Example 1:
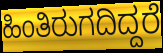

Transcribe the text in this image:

ಹಿಂತಿರುಗದಿದ್ದರೆ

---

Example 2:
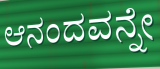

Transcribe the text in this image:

ಆನಂದವನ್ನೇ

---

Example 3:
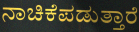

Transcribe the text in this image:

ನಾಚಿಕೆಪಡುತ್ತಾರೆ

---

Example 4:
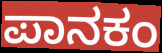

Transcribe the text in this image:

ಪಾನಕಂ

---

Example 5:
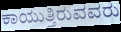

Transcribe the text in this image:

ಕಾಯುತ್ತಿರುವವರು